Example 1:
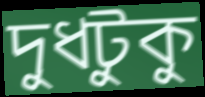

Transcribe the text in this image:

দুধটুকু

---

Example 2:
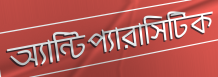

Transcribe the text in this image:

অ্যান্টিপ্যারাসিটিক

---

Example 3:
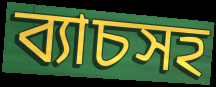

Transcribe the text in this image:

ব্যাচসহ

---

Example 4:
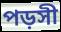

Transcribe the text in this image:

পড়সী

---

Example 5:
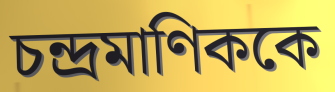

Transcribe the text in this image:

চন্দ্রমাণিককে